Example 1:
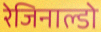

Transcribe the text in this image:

रेजिनाल्डो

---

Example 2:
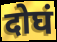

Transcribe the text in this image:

दोघं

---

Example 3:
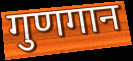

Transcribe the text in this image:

गुणगान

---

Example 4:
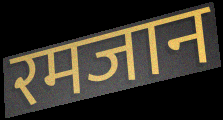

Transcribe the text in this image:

रमजान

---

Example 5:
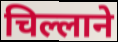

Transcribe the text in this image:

चिल्लाने